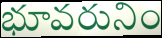
భూవరునిం